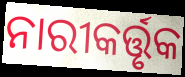
ନାରୀକର୍ତ୍ତୃକ